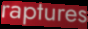
raptures